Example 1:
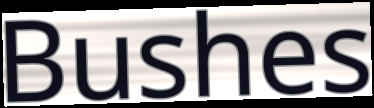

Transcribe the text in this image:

Bushes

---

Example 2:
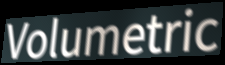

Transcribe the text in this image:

Volumetric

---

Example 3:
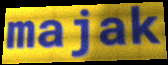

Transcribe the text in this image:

majak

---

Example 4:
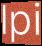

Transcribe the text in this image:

lpi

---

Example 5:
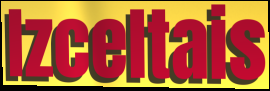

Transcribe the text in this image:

Izceltais